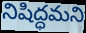
నిషిద్ధమని